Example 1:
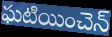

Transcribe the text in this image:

ఘటియించెన్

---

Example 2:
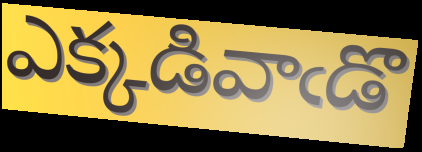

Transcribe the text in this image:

ఎక్కడివాఁడొ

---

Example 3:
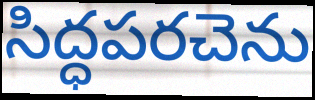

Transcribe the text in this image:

సిద్ధపరచెను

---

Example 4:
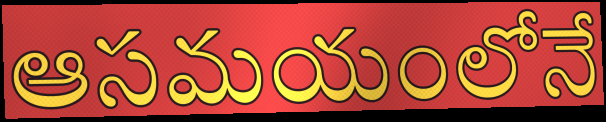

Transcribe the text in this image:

ఆసమయంలోనే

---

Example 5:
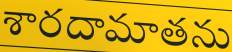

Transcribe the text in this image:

శారదామాతను